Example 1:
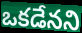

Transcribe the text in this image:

ఒకడేనని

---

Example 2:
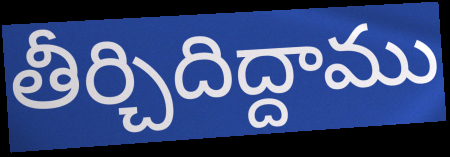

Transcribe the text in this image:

తీర్చిదిద్దాము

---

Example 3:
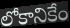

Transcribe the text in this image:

లోకానికేం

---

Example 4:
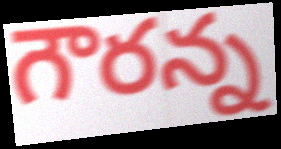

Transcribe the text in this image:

గౌరన్న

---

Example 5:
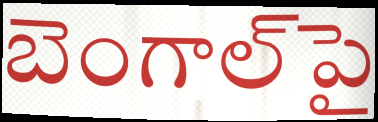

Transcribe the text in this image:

బెంగాల్‌పై